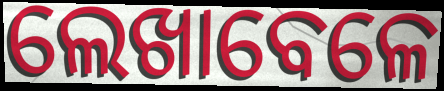
ଲେଖାବେଳେ